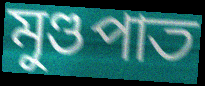
মুণ্ডপাত